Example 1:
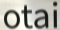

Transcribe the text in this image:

otai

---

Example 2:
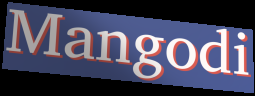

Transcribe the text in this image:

Mangodi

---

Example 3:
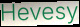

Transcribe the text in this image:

Hevesy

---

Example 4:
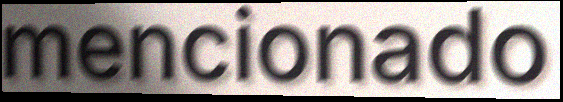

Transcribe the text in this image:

mencionado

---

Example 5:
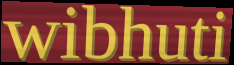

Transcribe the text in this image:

wibhuti